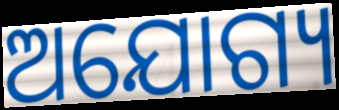
ଅଯୋଗ୍ୟ